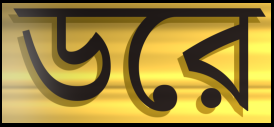
ডরে